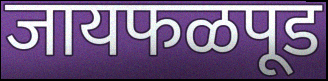
जायफळपूड